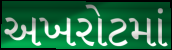
અખરોટમાં